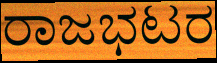
ರಾಜಭಟರ